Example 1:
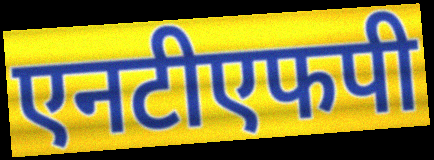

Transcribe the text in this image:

एनटीएफपी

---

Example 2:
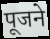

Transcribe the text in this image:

पूजने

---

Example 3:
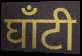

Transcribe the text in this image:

घाँटी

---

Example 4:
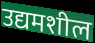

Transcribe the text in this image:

उद्यमशील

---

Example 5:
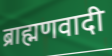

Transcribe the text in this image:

ब्राह्मणवादी